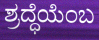
ಶ್ರದ್ಧೆಯೆಂಬ